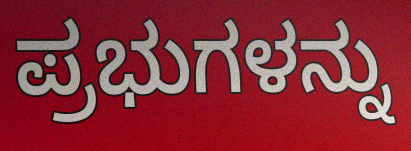
ಪ್ರಭುಗಳನ್ನು